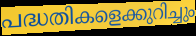
പദ്ധതികളെക്കുറിച്ചും